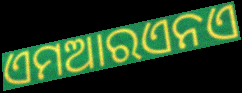
ଏମଆରଏନଏ